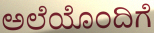
ಅಲೆಯೊಂದಿಗೆ